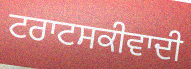
ਟਰਾਟਸਕੀਵਾਦੀ